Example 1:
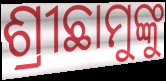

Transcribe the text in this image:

ଶ୍ରୀଛାମୁଙ୍କୁ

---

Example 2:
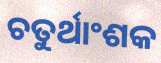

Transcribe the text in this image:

ଚତୁର୍ଥାଂଶକ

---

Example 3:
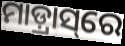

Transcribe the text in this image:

ମାଡ଼୍ରାସ୍‌ରେ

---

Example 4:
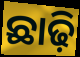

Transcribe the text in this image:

ଛାଢ଼ି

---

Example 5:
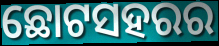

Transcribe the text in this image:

ଛୋଟସହରର